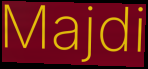
Majdi